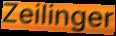
Zeilinger